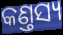
କଣ୍ତସ୍ୟ